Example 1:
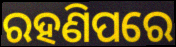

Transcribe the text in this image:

ରହଣିପରେ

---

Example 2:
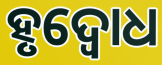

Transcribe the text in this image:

ହୃଦ୍ବୋଧ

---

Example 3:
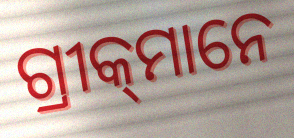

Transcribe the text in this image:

ଗ୍ରୀକ୍‌ମାନେ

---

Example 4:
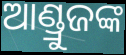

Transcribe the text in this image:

ଆଣ୍ଡ୍ରୁଜଙ୍କ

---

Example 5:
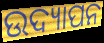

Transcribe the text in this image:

ଉଦ୍ୟାପନ